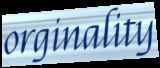
orginality